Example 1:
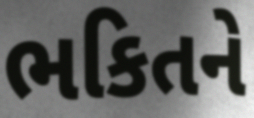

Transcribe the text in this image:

ભકિતને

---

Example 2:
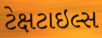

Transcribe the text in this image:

ટેક્ષટાઇલ્સ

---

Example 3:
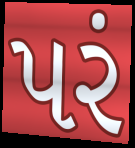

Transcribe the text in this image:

પરં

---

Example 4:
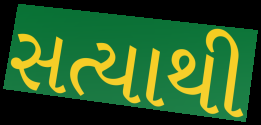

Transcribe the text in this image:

સત્યાથી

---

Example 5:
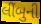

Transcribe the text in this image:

લીંબુની